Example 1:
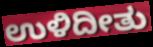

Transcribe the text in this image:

ಉಳಿದೀತು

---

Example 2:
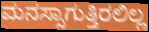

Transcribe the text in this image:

ಮನಸ್ಸಾಗುತ್ತಿರಲಿಲ್ಲ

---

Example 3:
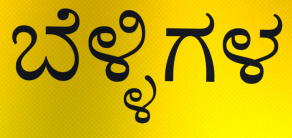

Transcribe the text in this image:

ಬೆಳ್ಳಿಗಳ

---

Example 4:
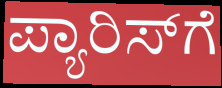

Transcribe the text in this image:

ಪ್ಯಾರಿಸ್‍ಗೆ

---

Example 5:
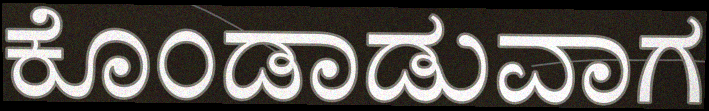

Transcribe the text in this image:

ಕೊಂಡಾಡುವಾಗ